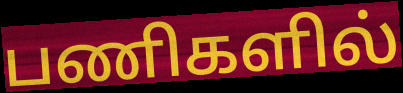
பணிகளில்